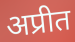
अप्रीत